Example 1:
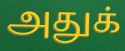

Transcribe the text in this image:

அதுக்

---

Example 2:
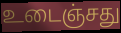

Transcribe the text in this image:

உடைஞ்சது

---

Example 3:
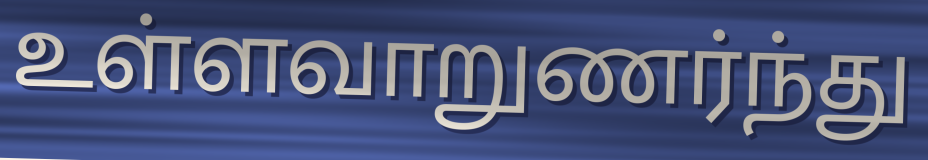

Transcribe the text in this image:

உள்ளவாறுணர்ந்து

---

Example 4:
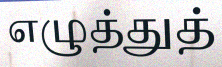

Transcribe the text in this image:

எழுத்துத்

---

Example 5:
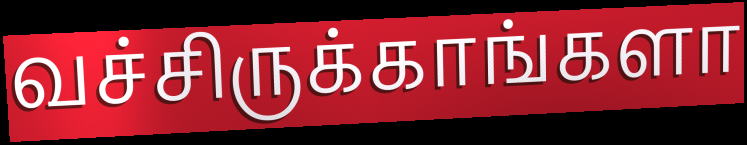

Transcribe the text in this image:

வச்சிருக்காங்களா